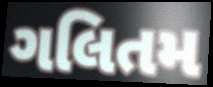
ગલિતમ